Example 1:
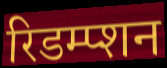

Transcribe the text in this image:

रिडम्प्शन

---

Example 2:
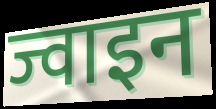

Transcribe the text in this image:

ज्वाइन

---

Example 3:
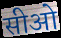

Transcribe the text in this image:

सीओ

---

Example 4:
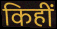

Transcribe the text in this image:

किहीं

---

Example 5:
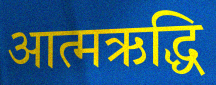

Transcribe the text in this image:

आत्मऋद्धि